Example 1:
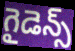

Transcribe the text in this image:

గైడెన్స్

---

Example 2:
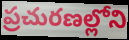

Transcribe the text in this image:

ప్రచురణల్లోని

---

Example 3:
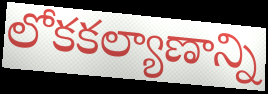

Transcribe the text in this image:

లోకకల్యాణాన్ని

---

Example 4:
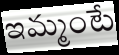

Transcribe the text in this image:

ఇమ్మంటే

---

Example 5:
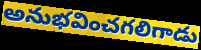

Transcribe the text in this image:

అనుభవించగలిగాడు